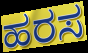
ಹರಸ